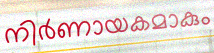
നിർണായകമാകും